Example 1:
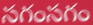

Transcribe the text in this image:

సగంసగం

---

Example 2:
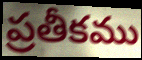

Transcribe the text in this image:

ప్రతీకము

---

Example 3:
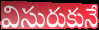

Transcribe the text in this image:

విసురుకునే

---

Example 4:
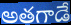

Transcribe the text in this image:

అతగాడే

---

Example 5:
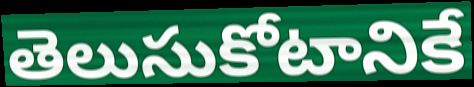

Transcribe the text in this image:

తెలుసుకోటానికే